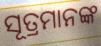
ସୂତ୍ରମାନଙ୍କ